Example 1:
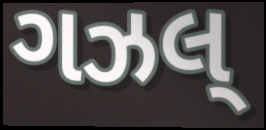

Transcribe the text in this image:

ગઝલ્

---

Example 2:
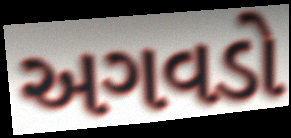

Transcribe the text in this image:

અગવડો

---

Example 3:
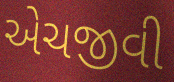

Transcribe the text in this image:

એચજીવી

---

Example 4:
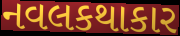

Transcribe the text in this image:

નવલકથાકાર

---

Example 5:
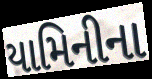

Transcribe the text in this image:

યામિનીના